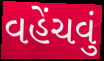
વહેંચવું